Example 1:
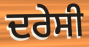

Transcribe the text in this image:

ਦਰੇਸੀ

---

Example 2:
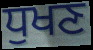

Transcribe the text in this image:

ਧੁਖਣ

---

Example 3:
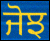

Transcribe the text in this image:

ਜੋਝ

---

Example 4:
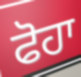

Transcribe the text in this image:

ਫੋਹਾ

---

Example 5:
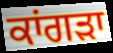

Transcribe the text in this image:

ਕਾਂਗੜਾ